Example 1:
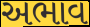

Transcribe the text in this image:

અભાવ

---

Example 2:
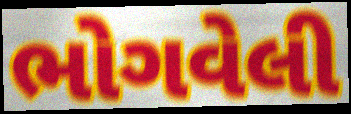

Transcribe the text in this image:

ભોગવેલી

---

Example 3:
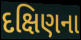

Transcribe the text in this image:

દક્ષિણના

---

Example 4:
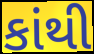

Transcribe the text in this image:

કાંથી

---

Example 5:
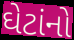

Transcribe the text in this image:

ઘેટાંનો